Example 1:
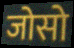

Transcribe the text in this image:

जोसो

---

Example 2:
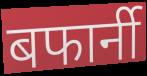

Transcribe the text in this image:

बफार्नी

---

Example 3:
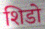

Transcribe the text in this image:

शिडो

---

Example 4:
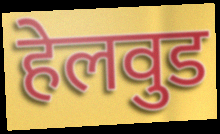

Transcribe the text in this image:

हेलवुड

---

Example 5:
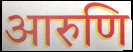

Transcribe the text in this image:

आरुणि